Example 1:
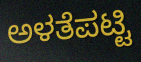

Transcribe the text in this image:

ಅಳತೆಪಟ್ಟಿ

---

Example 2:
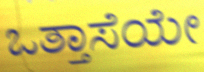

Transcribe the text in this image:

ಒತ್ತಾಸೆಯೇ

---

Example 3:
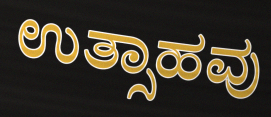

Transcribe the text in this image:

ಉತ್ಸಾಹವು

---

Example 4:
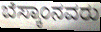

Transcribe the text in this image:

ಬೆಸ್ಕಾಂನವರು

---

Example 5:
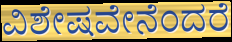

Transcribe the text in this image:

ವಿಶೇಷವೇನೆಂದರೆ